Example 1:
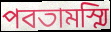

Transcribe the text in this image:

পবতামস্মি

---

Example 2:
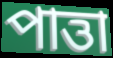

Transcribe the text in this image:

পাত্তা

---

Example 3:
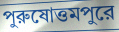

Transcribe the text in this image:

পুরুষোত্তমপুরে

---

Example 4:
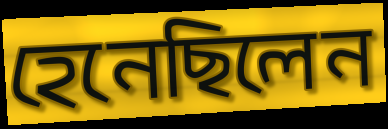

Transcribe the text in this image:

হেনেছিলেন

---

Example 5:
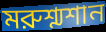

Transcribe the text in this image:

মরুশ্মশান